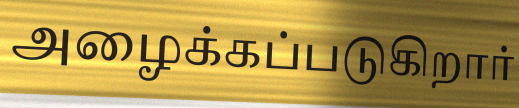
அழைக்கப்படுகிறார்